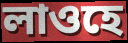
লাওহে